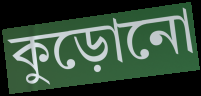
কুড়োনো